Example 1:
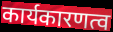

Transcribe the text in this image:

कार्यकारणत्व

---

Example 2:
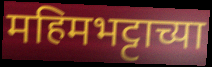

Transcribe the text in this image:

महिमभट्टाच्या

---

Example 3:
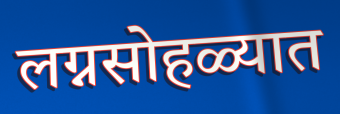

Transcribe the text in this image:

लग्नसोहळ्यात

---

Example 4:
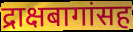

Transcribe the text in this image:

द्राक्षबागांसह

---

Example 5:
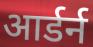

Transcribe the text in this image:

आर्डर्न